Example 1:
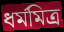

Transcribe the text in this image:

ধর্মমিত্র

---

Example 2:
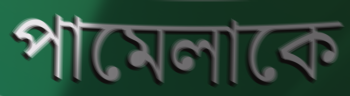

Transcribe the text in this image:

পামেলাকে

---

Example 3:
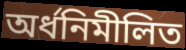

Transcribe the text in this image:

অর্ধনিমীলিত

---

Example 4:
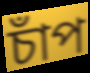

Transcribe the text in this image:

চাঁপ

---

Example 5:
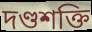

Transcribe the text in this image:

দণ্ডশক্তি